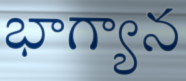
భాగ్యాన